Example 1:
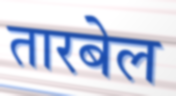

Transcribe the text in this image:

तारबेल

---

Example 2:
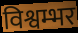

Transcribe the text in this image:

विश्वम्भर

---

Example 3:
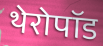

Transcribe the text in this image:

थेरोपॉड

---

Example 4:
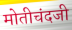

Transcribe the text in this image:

मोतीचंदजी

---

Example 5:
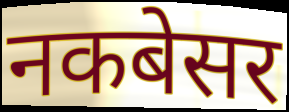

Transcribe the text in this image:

नकबेसर